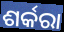
ଶର୍କରା